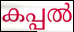
കപ്പൽ